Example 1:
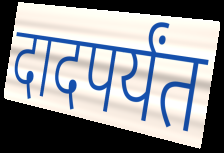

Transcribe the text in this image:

दादपर्यंत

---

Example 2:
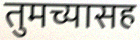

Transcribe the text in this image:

तुमच्यासह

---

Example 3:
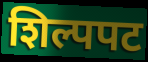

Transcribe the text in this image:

शिल्पपट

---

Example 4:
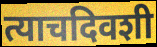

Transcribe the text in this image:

त्याचदिवशी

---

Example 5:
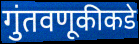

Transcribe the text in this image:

गुंतवणूकीकडे